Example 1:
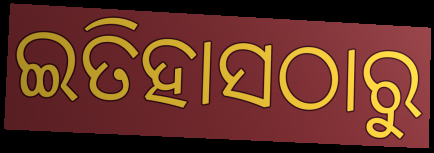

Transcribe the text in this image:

ଇତିହାସଠାରୁ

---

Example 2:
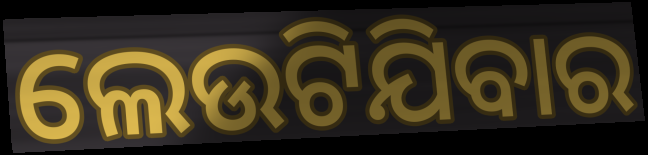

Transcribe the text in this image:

ଲେଉଟିଯିବାର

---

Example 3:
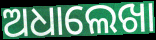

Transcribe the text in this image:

ଅଧାଲେଖା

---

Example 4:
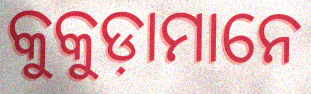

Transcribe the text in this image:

କୁକୁଡ଼ାମାନେ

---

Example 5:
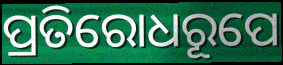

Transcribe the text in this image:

ପ୍ରତିରୋଧରୂପେ